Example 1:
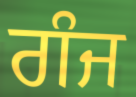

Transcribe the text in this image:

ਗੰਜ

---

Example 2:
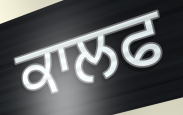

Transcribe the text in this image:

ਕਾਲਫ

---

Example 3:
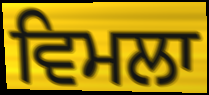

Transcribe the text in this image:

ਵਿਮਲਾ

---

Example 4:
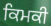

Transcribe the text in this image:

ਕਿਮਕੀ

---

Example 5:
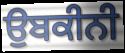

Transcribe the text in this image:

ਉਬਕੀਨੀ